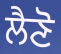
ਲੈਣੋ